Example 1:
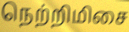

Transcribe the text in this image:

நெற்றிமிசை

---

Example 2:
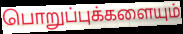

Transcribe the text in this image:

பொறுப்புக்களையும்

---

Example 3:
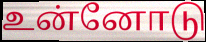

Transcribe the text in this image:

உன்னோடு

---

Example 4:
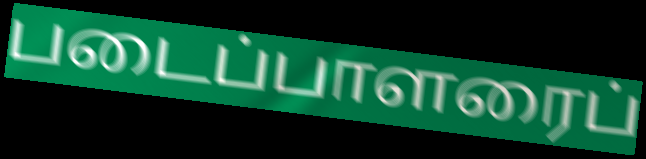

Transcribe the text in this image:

படைப்பாளரைப்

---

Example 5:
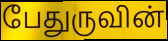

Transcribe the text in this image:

பேதுருவின்